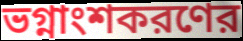
ভগ্নাংশকরণের